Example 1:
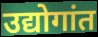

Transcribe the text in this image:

उद्योगांत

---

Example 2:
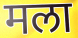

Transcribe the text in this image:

मला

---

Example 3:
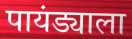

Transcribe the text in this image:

पायंड्याला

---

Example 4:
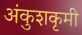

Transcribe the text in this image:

अंकुशकृमी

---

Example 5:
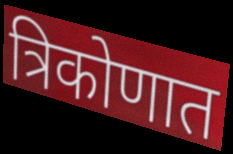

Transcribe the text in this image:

त्रिकोणात